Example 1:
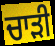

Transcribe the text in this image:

ਚਾਡ਼ੀ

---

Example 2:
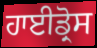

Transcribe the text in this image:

ਹਾਈਡ੍ਰੋਸ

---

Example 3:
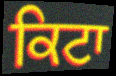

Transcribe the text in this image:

ਕਿਟਾ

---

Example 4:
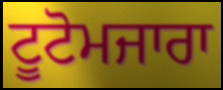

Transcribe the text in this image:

ਟੂਟੋਮਜਾਰਾ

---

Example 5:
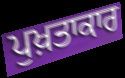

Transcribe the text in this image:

ਪੁਖ਼ਤਾਕਾਰ